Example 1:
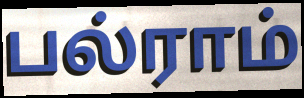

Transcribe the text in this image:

பல்ராம்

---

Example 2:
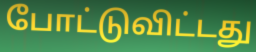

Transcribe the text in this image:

போட்டுவிட்டது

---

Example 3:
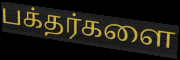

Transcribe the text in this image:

பக்தர்களை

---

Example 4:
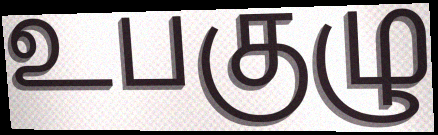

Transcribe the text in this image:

உபகுழு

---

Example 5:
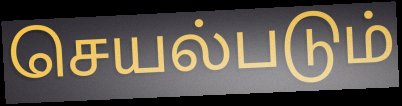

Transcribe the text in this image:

செயல்படும்